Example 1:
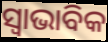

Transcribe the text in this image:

ସ୍ଵାଭାବିକ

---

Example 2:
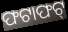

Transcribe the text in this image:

ଫଟାଫଟ୍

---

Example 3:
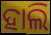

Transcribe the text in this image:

ହାଲି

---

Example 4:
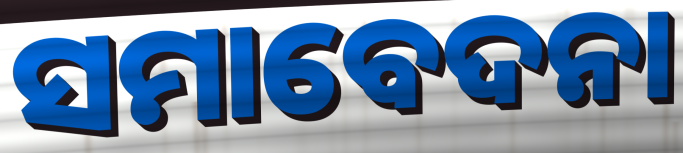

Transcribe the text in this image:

ସମାବେଦନା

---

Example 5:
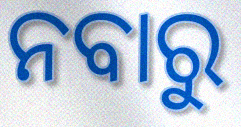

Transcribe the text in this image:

ନବାରୁ